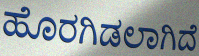
ಹೊರಗಿಡಲಾಗಿದೆ